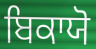
ਬਿਕਾਯੋ